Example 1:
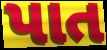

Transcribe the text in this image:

પાત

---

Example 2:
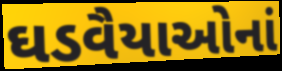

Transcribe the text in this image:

ઘડવૈયાઓનાં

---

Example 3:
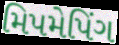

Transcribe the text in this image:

મિપમેપિંગ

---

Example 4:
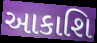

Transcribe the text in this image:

આકાશિ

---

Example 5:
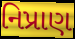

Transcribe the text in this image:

નિપ્રાણ